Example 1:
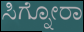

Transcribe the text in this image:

ಸಿಗ್ನೋರಾ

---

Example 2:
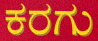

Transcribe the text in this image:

ಕರಗು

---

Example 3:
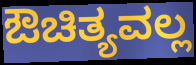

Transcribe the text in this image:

ಔಚಿತ್ಯವಲ್ಲ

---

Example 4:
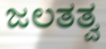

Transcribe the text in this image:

ಜಲತತ್ವ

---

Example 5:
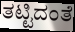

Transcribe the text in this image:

ತಟ್ಟಿದಂತೆ